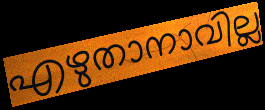
എഴുതാനാവില്ല